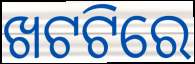
ଖଟଟିରେ